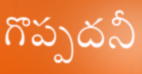
గొప్పదనీ